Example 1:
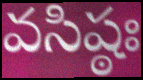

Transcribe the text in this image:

వసిష్ఠః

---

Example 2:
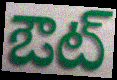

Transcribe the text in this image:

ఔట్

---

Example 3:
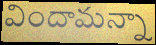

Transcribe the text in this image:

విందామన్నా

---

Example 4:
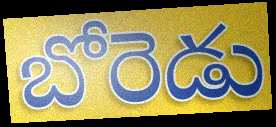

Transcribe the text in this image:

బోరెడు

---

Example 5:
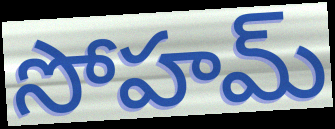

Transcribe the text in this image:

సోహమ్